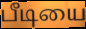
பீடியை